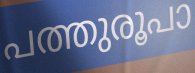
പത്തുരൂപാ